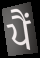
ਪੈਂ